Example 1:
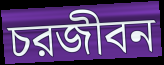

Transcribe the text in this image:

চরজীবন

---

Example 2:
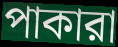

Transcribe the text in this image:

পাকারা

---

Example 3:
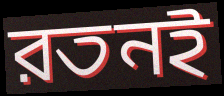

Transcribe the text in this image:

রতনই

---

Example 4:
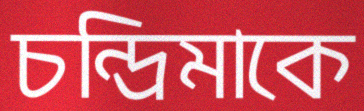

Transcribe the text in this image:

চন্দ্রিমাকে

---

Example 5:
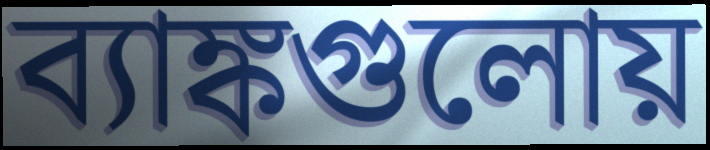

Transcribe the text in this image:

ব্যাঙ্কগুলোয়